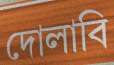
দোলাবি